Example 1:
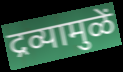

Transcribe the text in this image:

द्रव्यामुळें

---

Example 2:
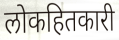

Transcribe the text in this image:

लोकहितकारी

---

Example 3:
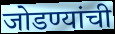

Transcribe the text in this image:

जोडण्यांची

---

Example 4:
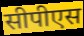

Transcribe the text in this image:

सीपीएस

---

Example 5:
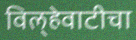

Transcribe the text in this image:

विल्हेवाटीचा